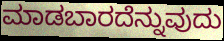
ಮಾಡಬಾರದೆನ್ನುವುದು